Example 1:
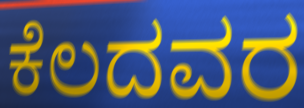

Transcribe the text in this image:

ಕೆಲದವರ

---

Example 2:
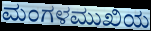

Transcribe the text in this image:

ಮಂಗಳಮುಖಿಯ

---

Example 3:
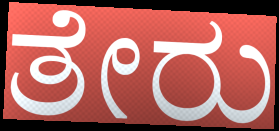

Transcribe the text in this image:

ತೇರು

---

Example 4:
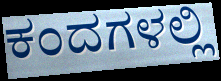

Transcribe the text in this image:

ಕಂದಗಳಲ್ಲಿ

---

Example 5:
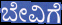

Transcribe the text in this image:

ಬೇವಿಗೆ